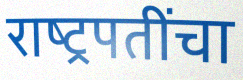
राष्ट्रपतींचा